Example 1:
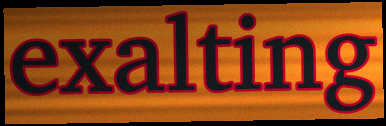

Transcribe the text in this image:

exalting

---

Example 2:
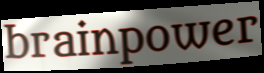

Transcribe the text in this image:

brainpower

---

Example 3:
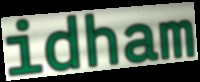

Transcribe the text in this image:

idham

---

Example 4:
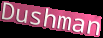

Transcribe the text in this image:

Dushman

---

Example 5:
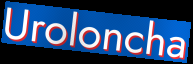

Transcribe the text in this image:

Uroloncha